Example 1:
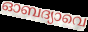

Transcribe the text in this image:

ഓബദ്യാവെ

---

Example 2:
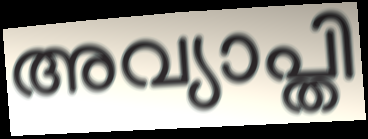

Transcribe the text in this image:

അവ്യാപ്തി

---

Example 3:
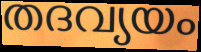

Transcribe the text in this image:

തദവ്യയം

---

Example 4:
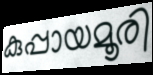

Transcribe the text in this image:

കുപ്പായമൂരി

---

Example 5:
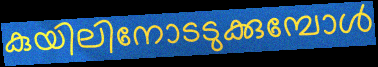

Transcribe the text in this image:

കുയിലിനോടടുക്കുമ്പോൾ